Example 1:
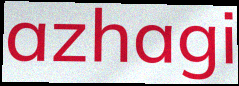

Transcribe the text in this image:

azhagi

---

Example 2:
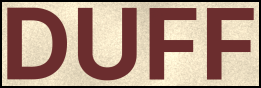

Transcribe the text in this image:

DUFF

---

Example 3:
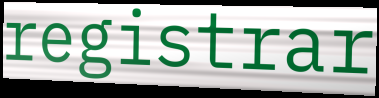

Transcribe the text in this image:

registrar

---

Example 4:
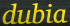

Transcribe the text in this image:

dubia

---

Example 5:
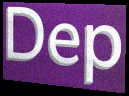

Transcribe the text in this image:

Dep